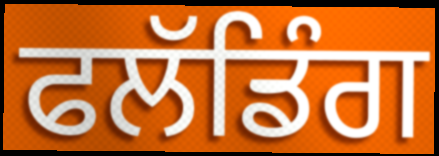
ਫਲੱਡਿੰਗ